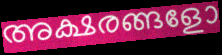
അക്ഷരങ്ങളോ